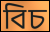
বিচ